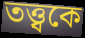
তত্ত্বকে